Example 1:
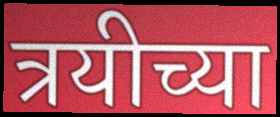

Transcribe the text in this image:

त्रयीच्या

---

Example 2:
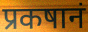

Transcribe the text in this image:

प्रकषानं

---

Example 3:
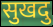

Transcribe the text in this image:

सुखदु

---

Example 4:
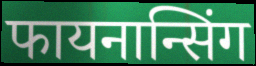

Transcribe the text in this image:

फायनान्सिंग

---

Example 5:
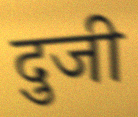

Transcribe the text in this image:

दुजी